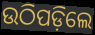
ଉଠିପଡ଼ିଲେ